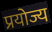
प्रयोज्य